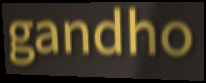
gandho